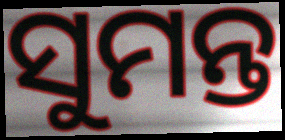
ସୁମନ୍ତ